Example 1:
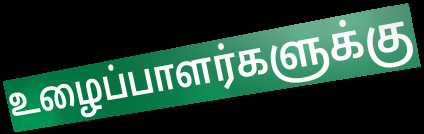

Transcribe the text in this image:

உழைப்பாளர்களுக்கு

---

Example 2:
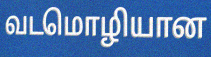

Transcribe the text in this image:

வடமொழியான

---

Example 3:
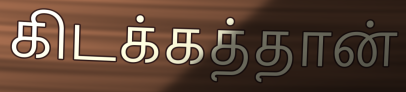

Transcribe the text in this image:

கிடக்கத்தான்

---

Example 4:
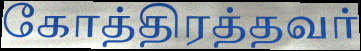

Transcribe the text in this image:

கோத்திரத்தவர்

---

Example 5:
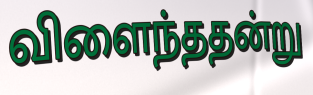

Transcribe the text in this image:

விளைந்ததன்று